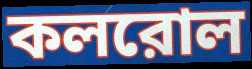
কলরোল